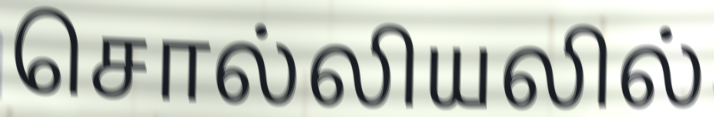
சொல்லியலில்